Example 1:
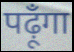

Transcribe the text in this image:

पढ़ूँगा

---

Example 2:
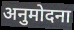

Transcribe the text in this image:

अनुमोदना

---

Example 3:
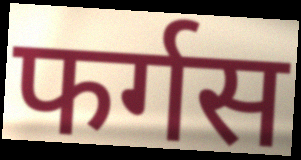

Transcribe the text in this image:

फर्गस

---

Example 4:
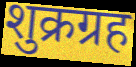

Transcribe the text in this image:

शुक्रग्रह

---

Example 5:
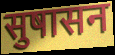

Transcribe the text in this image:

सुषासन